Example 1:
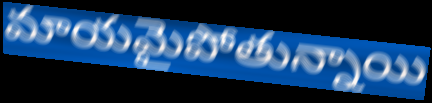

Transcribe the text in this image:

మాయమైపోతున్నాయి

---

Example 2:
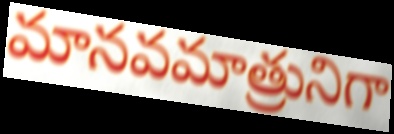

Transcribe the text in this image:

మానవమాత్రునిగా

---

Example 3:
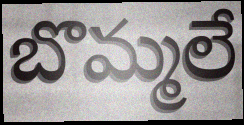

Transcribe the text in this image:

బొమ్మలే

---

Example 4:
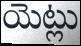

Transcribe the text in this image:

యెట్లు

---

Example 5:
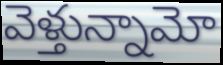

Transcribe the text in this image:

వెళ్తున్నామో